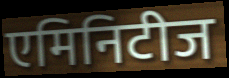
एमिनिटीज